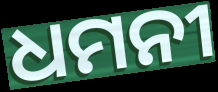
ଧମନୀ